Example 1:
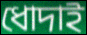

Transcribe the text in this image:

ধোদাই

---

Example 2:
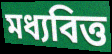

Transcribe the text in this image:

মধ্যবিত্ত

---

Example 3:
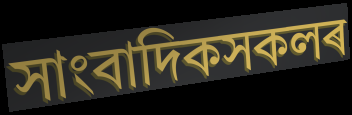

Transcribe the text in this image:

সাংবাদিকসকলৰ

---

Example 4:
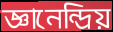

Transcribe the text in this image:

জ্ঞানেন্দ্ৰিয়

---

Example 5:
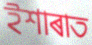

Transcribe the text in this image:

ইশাৰাত